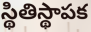
స్థితిస్థాపక